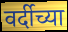
वर्दीच्या